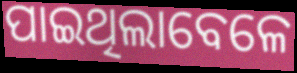
ପାଇଥିଲାବେଳେ